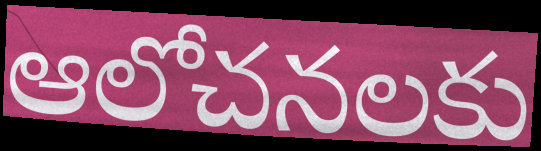
ఆలోచనలకు